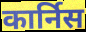
कार्निस